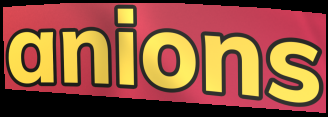
anions